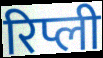
रिप्ली